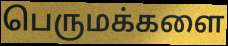
பெருமக்களை